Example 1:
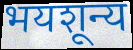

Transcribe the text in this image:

भयशून्य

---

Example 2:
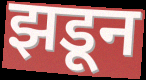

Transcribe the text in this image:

झडून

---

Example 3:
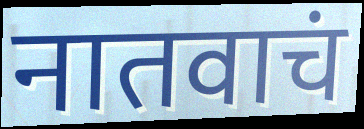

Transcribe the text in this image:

नातवाचं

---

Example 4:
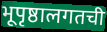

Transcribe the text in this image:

भूपृष्ठालगतची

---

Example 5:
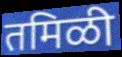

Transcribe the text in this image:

तमिळी